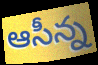
ఆసీన్న